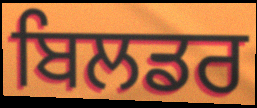
ਬਿਲਡਰ